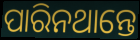
ପାରିନଥାନ୍ତେ